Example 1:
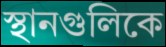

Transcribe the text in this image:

স্থানগুলিকে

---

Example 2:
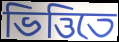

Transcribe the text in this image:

ভিত্তিতে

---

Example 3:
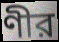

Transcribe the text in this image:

ণীর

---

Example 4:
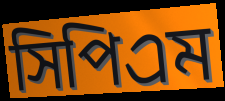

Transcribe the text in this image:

সিপিএম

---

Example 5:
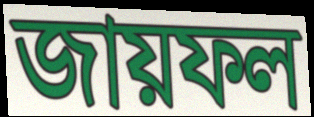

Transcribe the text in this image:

জায়ফল